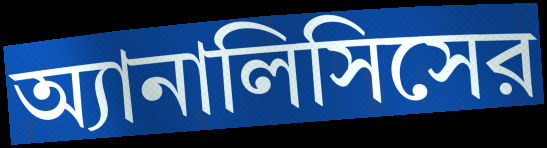
অ্যানালিসিসের